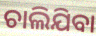
ଚାଲିଯିବା